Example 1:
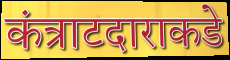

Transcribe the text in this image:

कंत्राटदाराकडे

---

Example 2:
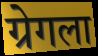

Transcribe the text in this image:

ग्रेगला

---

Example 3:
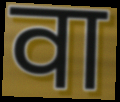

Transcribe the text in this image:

वा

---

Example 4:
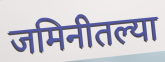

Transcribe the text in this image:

जमिनीतल्या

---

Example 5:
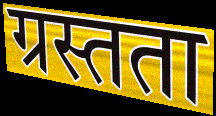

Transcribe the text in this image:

ग्रस्तता